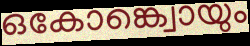
ഒകോങ്ക്വൊയും